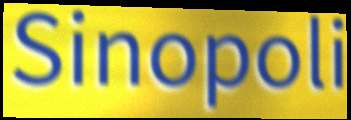
Sinopoli